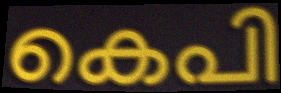
കെപി